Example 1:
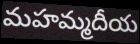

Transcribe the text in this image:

మహమ్మదీయ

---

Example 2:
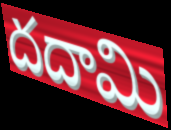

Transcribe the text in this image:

దదామి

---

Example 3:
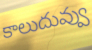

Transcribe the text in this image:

కాలుదువ్వు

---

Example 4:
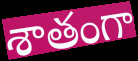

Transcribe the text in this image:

శాతంగా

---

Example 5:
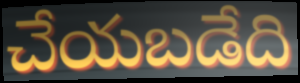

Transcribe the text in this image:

చేయబడేది